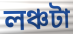
লঞ্চটা